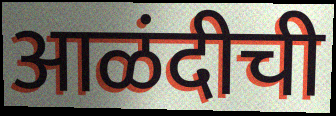
आळंदीची